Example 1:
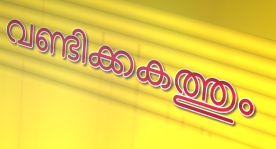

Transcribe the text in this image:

വണ്ടിക്കകത്തും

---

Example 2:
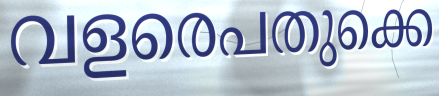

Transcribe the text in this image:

വളരെപതുക്കെ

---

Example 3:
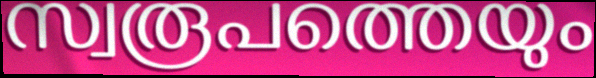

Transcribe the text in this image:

സ്വരൂപത്തെയും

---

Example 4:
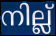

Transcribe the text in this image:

നില്ല്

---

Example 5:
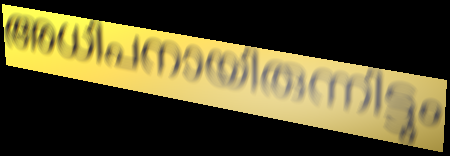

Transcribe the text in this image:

അധിപനായിരുന്നിട്ടും